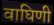
वाघिणी